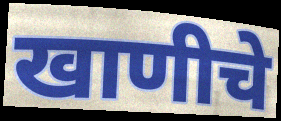
खाणीचे